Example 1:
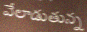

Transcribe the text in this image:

వేలాడుతున్న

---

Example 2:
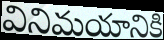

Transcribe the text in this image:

వినిమయానికి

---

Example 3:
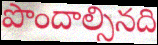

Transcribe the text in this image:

పొందాల్సినది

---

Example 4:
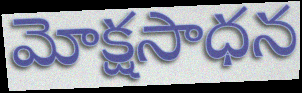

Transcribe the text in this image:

మోక్షసాధన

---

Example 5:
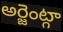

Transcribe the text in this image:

అర్జెంట్గా